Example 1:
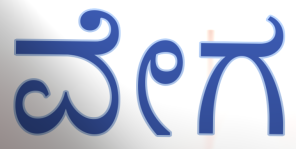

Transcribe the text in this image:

ವೇಗ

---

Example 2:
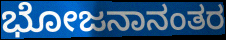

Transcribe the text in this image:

ಭೋಜನಾನಂತರ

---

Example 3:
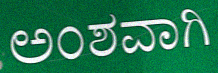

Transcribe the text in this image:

ಅಂಶವಾಗಿ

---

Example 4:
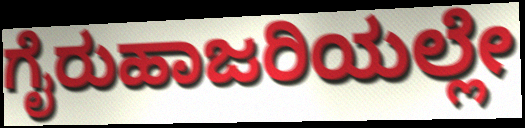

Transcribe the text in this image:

ಗೈರುಹಾಜರಿಯಲ್ಲೇ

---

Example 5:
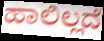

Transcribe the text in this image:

ಹಾಲಿಲ್ಲದೆ